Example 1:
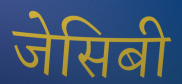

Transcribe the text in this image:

जेसिबी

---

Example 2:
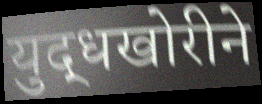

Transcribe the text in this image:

युद्धखोरीने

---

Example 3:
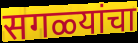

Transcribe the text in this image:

सगळ्यांचा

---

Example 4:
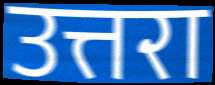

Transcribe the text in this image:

उत्तरा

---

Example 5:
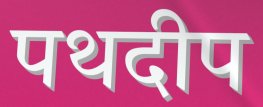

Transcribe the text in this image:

पथदीप